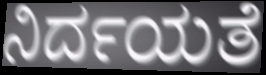
ನಿರ್ದಯತೆ